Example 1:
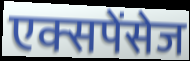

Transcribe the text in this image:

एक्सपेंसेज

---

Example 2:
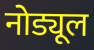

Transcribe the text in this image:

नोड्यूल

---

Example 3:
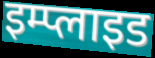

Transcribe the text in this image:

इम्प्लाइड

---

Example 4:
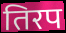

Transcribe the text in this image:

तिरप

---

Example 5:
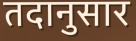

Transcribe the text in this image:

तदानुसार